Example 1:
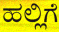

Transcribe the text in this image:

ಹಲ್ಲಿಗೆ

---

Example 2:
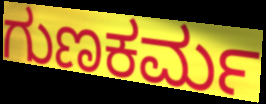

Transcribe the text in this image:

ಗುಣಕರ್ಮ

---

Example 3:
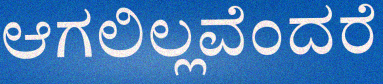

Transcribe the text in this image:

ಆಗಲಿಲ್ಲವೆಂದರೆ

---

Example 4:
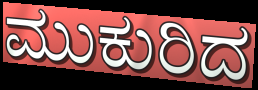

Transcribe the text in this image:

ಮುಕುರಿದ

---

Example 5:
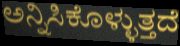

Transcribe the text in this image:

ಅನ್ನಿಸಿಕೊಳ್ಳುತ್ತದೆ